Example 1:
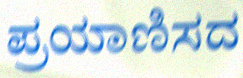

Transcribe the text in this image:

ಪ್ರಯಾಣಿಸದ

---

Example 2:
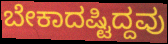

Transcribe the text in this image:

ಬೇಕಾದಷ್ಟಿದ್ದವು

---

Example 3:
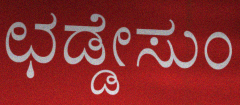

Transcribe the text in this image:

ಛಡ್ಡೇಸುಂ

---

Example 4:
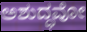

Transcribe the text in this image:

ಅಶುದ್ಧವೋ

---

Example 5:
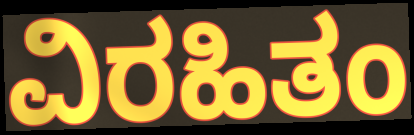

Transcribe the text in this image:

ವಿರಹಿತಂ